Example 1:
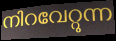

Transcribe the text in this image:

നിറവേറ്റുന്ന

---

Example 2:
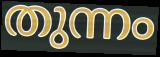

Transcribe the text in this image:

തുന്നം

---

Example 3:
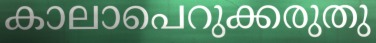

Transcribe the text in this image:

കാലാപെറുക്കരുതു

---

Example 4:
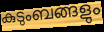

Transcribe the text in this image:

കുടുംബങ്ങളും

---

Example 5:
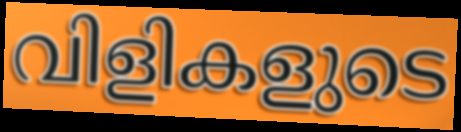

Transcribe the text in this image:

വിളികളുടെ